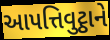
આપત્તિવુટ્ઠાને